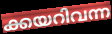
ക്കയറിവന്ന